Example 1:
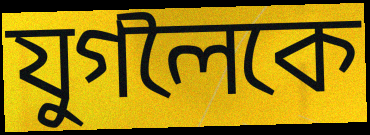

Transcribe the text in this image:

যুগলৈকে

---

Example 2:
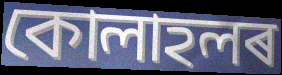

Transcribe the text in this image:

কোলাহলৰ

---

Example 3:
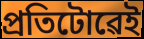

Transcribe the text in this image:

প্ৰতিটোৱেই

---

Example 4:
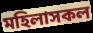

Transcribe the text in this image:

মহিলাসকল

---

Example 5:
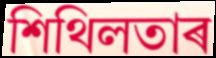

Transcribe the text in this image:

শিথিলতাৰ